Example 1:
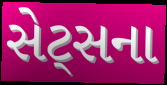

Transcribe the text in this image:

સેટ્સના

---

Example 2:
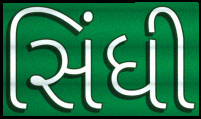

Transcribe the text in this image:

સિંધી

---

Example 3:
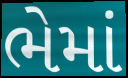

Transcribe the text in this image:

ભેમાં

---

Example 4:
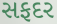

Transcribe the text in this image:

સફદર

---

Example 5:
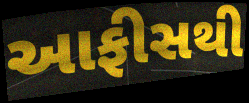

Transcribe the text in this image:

આફીસથી